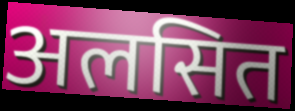
अलसित